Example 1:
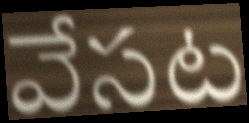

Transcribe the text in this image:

వేసట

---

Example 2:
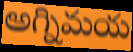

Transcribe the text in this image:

అగ్నిమయ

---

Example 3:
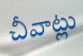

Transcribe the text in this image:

చీవాట్లు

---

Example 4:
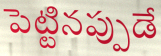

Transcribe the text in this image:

పెట్టినప్పుడే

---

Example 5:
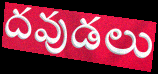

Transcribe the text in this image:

దవుడలు